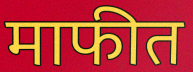
माफीत